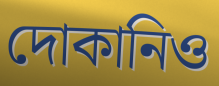
দোকানিও